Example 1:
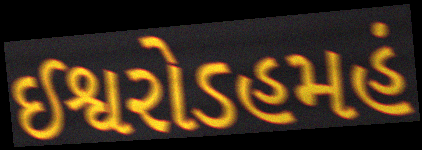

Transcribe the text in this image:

ઈશ્વરોઽહમહં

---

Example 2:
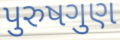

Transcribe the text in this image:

પુરુષગુણ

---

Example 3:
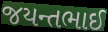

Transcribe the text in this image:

જયન્તભાઈ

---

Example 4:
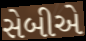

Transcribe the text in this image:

સેબીએ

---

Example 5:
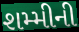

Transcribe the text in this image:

શમ્મીની